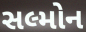
સલ્મોન